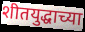
शीतयुद्धाच्या